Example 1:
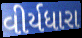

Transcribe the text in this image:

વીર્યધારા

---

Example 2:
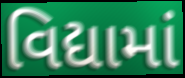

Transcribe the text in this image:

વિદ્યામાં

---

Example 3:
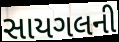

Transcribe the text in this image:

સાયગલની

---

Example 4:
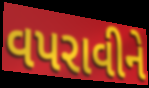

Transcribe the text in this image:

વપરાવીને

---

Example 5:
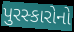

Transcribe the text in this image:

પુરસ્કારોનો